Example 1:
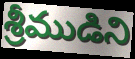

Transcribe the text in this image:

శ్రీముడిని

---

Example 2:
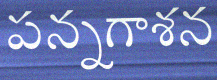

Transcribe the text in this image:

పన్నగాశన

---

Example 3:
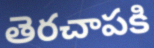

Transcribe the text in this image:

తెరచాపకి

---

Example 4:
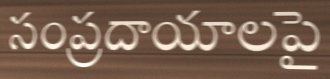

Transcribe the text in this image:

సంప్రదాయాలపై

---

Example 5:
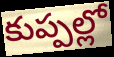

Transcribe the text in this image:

కుప్పల్లో